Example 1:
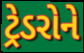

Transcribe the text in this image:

ટ્રેડરોને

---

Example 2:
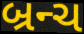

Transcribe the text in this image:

બ્રન્ચ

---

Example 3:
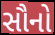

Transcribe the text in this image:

સૌનો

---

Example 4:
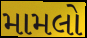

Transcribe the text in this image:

મામલો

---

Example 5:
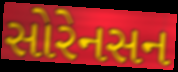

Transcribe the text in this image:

સોરેનસન